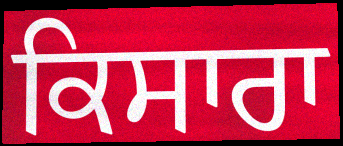
ਕਿਸਾਰਾ